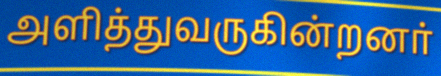
அளித்துவருகின்றனர்